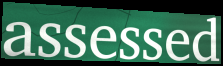
assessed